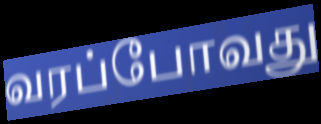
வரப்போவது